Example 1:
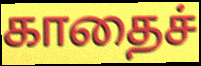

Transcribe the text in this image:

காதைச்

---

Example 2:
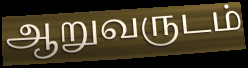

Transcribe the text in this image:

ஆறுவருடம்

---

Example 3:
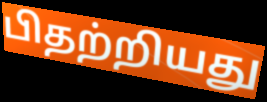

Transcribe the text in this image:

பிதற்றியது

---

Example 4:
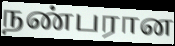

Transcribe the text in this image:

நண்பரான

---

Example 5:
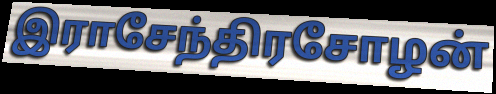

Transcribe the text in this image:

இராசேந்திரசோழன்